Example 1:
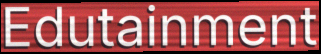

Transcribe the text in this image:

Edutainment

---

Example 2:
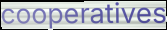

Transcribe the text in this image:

cooperatives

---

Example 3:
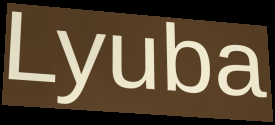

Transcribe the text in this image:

Lyuba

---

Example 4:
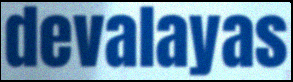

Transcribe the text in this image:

devalayas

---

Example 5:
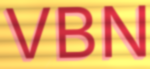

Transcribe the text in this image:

VBN